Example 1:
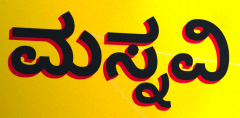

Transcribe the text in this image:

ಮಸ್ನವಿ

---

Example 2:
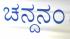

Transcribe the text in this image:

ಚನ್ದನಂ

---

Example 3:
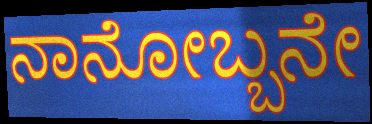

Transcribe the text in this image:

ನಾನೋಬ್ಬನೇ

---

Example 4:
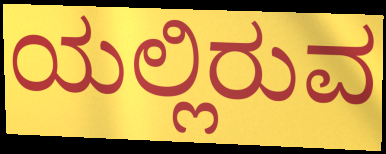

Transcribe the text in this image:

ಯಲ್ಲಿರುವ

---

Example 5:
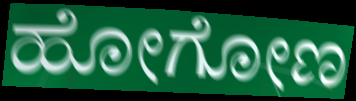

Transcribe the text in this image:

ಹೋಗೋಣ